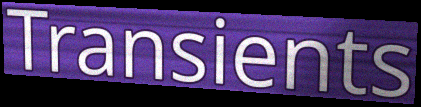
Transients